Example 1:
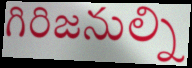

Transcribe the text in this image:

గిరిజనుల్ని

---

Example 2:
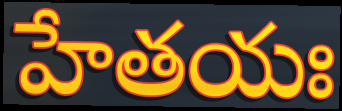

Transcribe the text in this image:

హేతయః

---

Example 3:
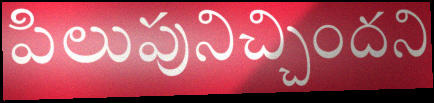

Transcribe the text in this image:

పిలుపునిచ్చిందని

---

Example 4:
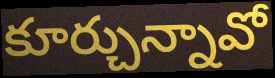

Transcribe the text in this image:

కూర్చున్నావో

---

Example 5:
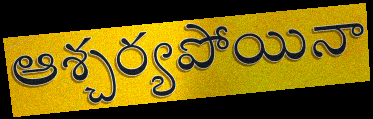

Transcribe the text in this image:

ఆశ్చర్యపోయినా